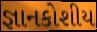
જ્ઞાનકોશીય